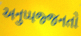
અનુપ્પજ્જનતો